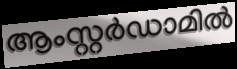
ആംസ്റ്റർഡാമിൽ